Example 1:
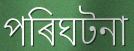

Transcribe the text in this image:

পৰিঘটনা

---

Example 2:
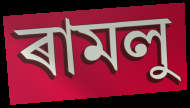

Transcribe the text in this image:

ৰামলু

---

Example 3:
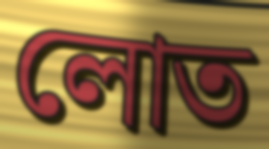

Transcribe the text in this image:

লোত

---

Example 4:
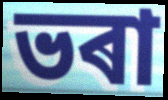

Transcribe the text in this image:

ভৰা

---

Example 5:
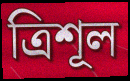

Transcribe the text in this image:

ত্ৰিশূল